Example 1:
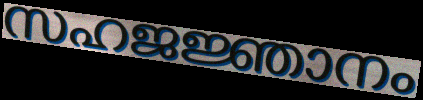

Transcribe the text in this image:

സഹജജ്ഞാനം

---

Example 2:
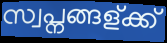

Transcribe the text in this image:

സ്വപ്നങ്ങള്ക്ക്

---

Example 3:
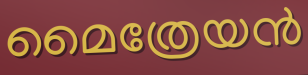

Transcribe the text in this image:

മൈത്രേയൻ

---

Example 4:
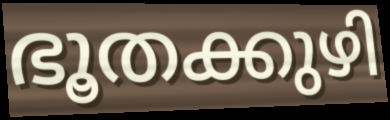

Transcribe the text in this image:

ഭൂതക്കുഴി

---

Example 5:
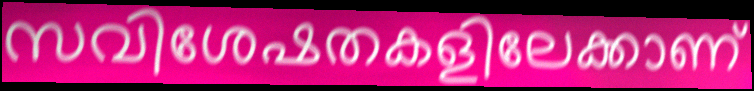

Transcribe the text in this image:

സവിശേഷതകളിലേക്കാണ്